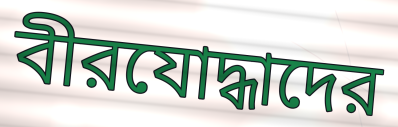
বীরযোদ্ধাদের